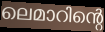
ലെമാറിന്റെ